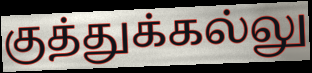
குத்துக்கல்லு